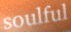
soulful